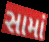
સામાં